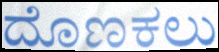
ದೊಣಕಲು